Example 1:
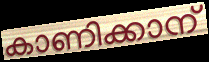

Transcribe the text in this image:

കാണിക്കാന്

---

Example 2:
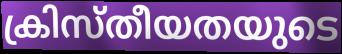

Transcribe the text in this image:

ക്രിസ്തീയതയുടെ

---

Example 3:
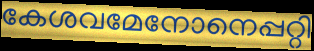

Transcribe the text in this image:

കേശവമേനോനെപ്പറ്റി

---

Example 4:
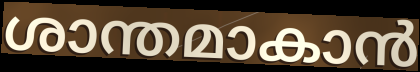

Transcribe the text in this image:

ശാന്തമാകാൻ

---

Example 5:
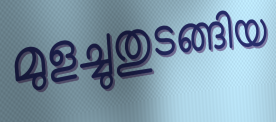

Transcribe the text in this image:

മുളച്ചുതുടങ്ങിയ